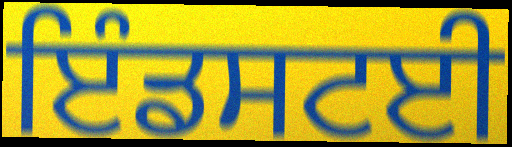
ਇੰਡਸਟਈ